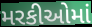
મરકીઓમાં